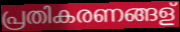
പ്രതികരണങ്ങള്